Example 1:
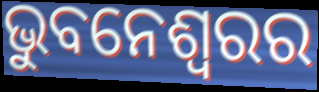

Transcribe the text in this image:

ଭୁବନେଶ୍ବରର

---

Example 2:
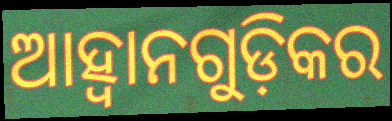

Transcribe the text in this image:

ଆହ୍ୱାନଗୁଡ଼ିକର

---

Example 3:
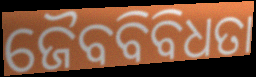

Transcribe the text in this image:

ଜୈବବିବିଧତା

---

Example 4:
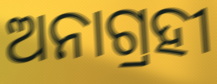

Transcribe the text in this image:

ଅନାଗ୍ରହୀ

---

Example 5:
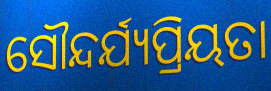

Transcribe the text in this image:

ସୌନ୍ଦର୍ଯ୍ୟପ୍ରିୟତା